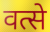
वत्से